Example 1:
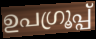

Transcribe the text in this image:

ഉപഗ്രൂപ്പ്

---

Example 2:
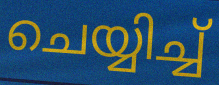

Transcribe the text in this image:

ചെയ്യിച്ച്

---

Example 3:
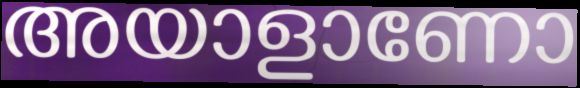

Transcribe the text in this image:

അയാളാണോ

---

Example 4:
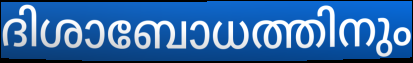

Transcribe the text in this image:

ദിശാബോധത്തിനും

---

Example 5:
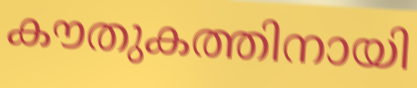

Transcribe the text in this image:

കൗതുകത്തിനായി